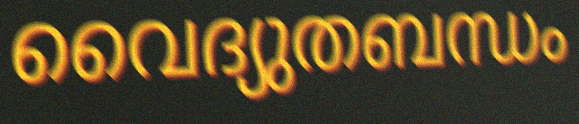
വൈദ്യുതബന്ധം